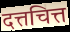
दत्तचित्त